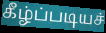
கீழ்ப்படியச்